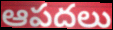
ఆపదలు